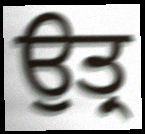
ਉਤ੍ਰ